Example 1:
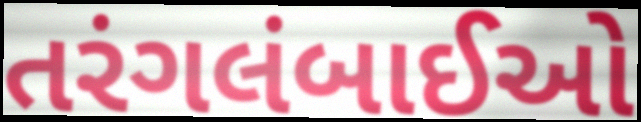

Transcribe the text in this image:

તરંગલંબાઈઓ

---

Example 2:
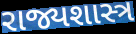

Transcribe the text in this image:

રાજ્યશાસ્ત્ર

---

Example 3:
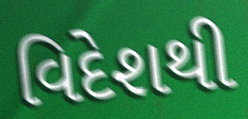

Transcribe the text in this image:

વિદેશથી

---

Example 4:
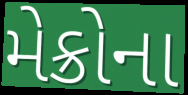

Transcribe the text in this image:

મેક્રોના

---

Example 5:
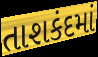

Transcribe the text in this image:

તાશકંદમાં